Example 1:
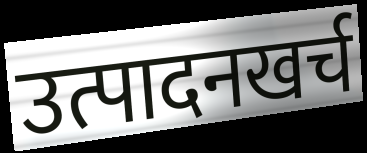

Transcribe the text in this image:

उत्पादनखर्च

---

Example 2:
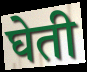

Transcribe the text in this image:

घेती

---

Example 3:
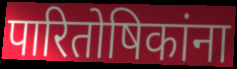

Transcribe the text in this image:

पारितोषिकांना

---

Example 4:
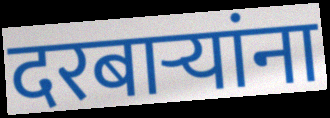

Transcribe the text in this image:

दरबाऱ्यांना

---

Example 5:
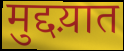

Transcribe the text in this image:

मुद्दय़ात